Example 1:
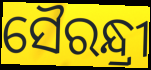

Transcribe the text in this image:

ସୈରନ୍ଧ୍ରୀ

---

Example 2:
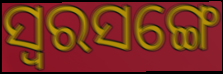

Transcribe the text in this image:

ସ୍ୱରସଙ୍ଗେ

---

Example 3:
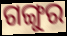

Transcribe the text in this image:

ଗଙ୍ଗୁର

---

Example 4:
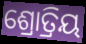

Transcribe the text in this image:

ଶ୍ରୋତ୍ରିୟ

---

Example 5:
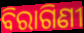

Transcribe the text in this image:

ବିରାଗିଣୀ